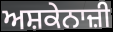
ਅਸ਼ਕੇਨਾਜ਼ੀ